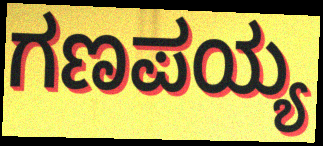
ಗಣಪಯ್ಯ